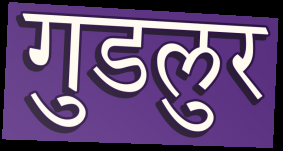
गुडलुर